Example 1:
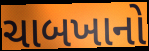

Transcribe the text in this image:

ચાબખાનો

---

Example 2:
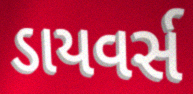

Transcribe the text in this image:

ડાયવર્સ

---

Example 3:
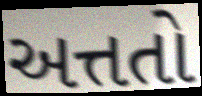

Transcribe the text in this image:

અત્તતો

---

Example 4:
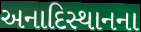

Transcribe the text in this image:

અનાદિસ્થાનના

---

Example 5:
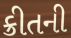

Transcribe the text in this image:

ક્રીતની